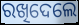
ରଖିଦେଲେ